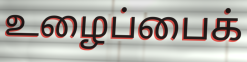
உழைப்பைக்